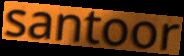
santoor